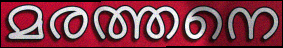
മരത്തനെ